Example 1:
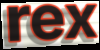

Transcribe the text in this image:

rex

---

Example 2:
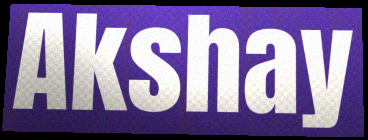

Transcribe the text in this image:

Akshay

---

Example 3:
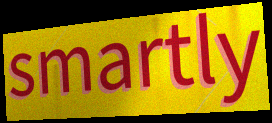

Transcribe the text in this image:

smartly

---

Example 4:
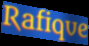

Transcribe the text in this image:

Rafique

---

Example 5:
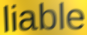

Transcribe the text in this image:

liable